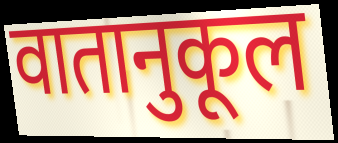
वातानुकूल